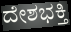
ದೇಶಭಕ್ತಿ